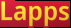
Lapps